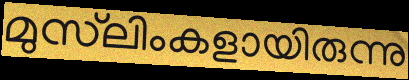
മുസ്‌ലിംകളായിരുന്നു